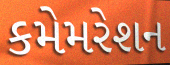
કમેમરેશન